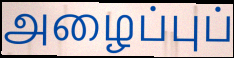
அழைப்புப்